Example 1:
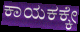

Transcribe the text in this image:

ಕಾಯಕಕ್ಕೇ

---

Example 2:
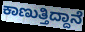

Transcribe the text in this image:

ಕಾಣುತ್ತಿದ್ದಾನೆ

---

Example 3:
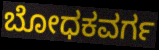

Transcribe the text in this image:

ಬೋಧಕವರ್ಗ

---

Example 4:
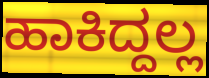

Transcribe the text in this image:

ಹಾಕಿದ್ದಲ್ಲ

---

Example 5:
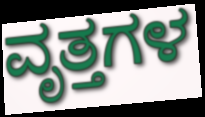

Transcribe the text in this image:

ವೃತ್ತಗಳ